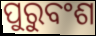
ପୁରୁବଂଶ